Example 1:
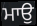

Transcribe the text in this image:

ਮਾਉ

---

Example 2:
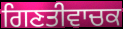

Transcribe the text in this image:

ਗਿਣਤੀਵਾਚਕ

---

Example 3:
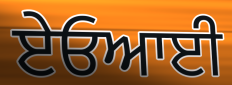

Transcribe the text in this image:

ਏਓਆਈ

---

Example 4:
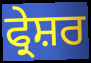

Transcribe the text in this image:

ਫ੍ਰੇਸ਼ਰ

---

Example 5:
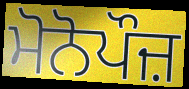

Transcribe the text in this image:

ਮੋਨੋਪੌਜ਼